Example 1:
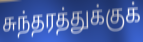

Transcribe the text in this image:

சுந்தரத்துக்குக்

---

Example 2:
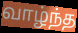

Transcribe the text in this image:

வாழ்ந்த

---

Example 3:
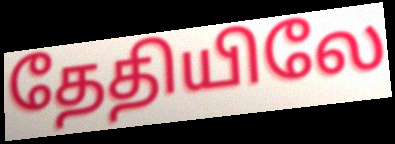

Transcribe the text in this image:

தேதியிலே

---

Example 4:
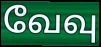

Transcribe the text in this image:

வேவு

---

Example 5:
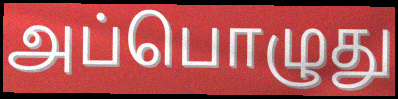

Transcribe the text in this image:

அப்பொழுது